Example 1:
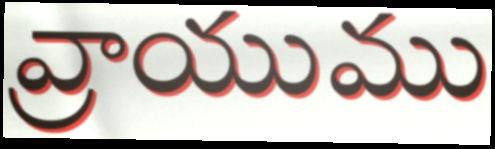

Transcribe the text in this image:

వ్రాయుము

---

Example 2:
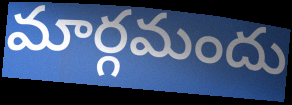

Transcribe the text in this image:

మార్గమందు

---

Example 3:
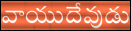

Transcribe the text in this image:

వాయుదేవుడు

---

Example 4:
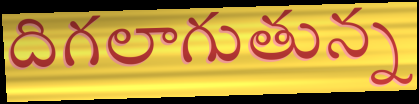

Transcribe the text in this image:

దిగలాగుతున్న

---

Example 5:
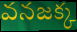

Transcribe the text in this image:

వనజక్క